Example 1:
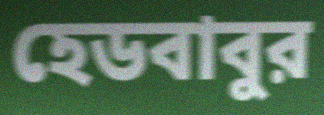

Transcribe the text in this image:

হেডবাবুর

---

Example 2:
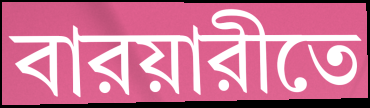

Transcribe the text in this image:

বারয়ারীতে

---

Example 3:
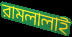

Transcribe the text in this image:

রামলালাই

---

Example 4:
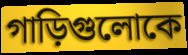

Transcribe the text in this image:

গাড়িগুলোকে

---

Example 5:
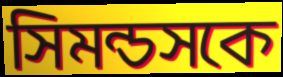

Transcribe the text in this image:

সিমন্ডসকে